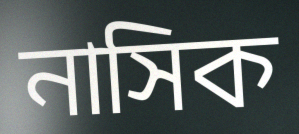
নাসিক